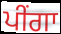
ਪੀਂਗਾ